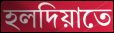
হলদিয়াতে